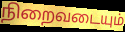
நிறைவடையும்